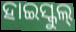
ହାଇସ୍କୁଲ୍